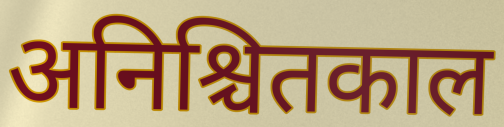
अनिश्चितकाल